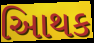
આિથક